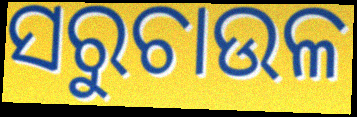
ସରୁଚାଉଳ